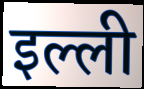
इल्ली